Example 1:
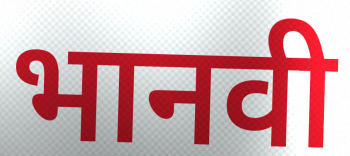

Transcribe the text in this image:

भानवी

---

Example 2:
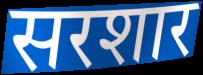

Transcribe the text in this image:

सरशार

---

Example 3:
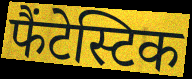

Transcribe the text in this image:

फैंटेस्टिक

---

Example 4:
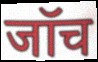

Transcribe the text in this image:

जॉच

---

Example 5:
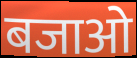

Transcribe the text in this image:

बजाओ